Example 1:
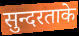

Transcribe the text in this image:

सुन्दरताके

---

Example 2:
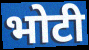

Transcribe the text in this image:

भोटी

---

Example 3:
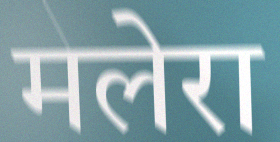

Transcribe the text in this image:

मलेरा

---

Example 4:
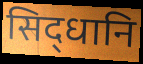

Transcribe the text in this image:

सिद्धानि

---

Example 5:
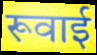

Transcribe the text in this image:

रूवाई